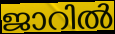
ജാറിൽ